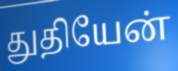
துதியேன்